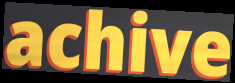
achive